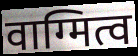
वाग्मित्व